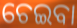
ଚେଇବା